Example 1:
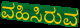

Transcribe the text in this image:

ವಹಿಸಿರುವ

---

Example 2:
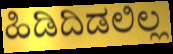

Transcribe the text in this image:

ಹಿಡಿದಿಡಲಿಲ್ಲ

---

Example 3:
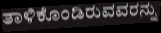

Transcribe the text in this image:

ತಾಳಿಕೊಂಡಿರುವವರನ್ನು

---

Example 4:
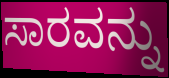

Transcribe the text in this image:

ಸಾರವನ್ನು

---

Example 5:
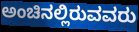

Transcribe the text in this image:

ಅಂಚಿನಲ್ಲಿರುವವರು